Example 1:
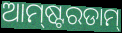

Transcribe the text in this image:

ଆମ୍‍ଷ୍ଟରଡାମ୍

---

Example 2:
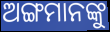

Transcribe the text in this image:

ଅଙ୍ଗମାନଙ୍କୁ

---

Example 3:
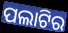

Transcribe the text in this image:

ପଲାଟିର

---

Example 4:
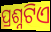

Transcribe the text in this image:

ପ୍ରଶ୍ନଟିଏ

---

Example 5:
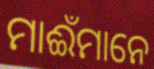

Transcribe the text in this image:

ମାଈଁମାନେ